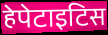
हेपेटाइटिस